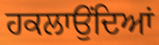
ਹਕਲਾਉਂਦਿਆਂ